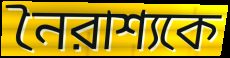
নৈরাশ্যকে